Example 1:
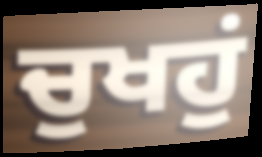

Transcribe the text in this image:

ਚੁਖਹੁਂ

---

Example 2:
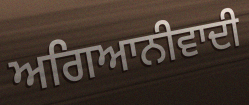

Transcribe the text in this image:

ਅਗਿਆਨੀਵਾਦੀ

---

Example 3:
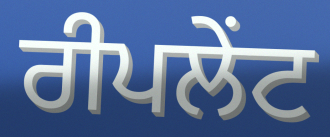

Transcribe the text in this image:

ਰੀਪਲੇਂਟ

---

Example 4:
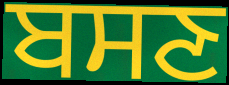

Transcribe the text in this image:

ਬਸਣ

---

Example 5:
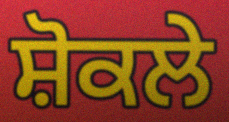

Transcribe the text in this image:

ਸ਼ੋਕਲੇ